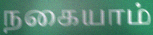
நகையாம்